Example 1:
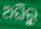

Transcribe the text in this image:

ଅଘିରୁ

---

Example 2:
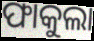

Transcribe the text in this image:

ଫାକୁଲା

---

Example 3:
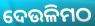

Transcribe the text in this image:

ଦେଉଳିମଠ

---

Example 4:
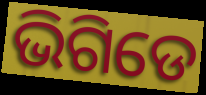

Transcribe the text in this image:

ଭିଗିଡେ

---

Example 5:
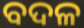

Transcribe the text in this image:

ବଦଳ